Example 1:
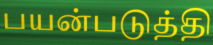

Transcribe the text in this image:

பயன்படுத்தி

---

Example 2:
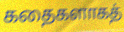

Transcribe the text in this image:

கதைகளாகத்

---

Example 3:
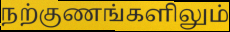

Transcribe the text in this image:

நற்குணங்களிலும்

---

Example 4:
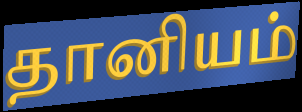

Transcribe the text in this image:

தானியம்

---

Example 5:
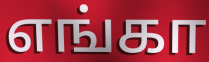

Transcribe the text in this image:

எங்கா